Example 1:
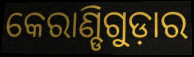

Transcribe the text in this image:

କେରାଣ୍ଡିଗୁଡ଼ାର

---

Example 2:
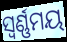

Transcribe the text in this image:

ସ୍ଵର୍ଣ୍ଣମୟ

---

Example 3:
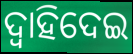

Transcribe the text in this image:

ଦ୍ୱାହିଦେଇ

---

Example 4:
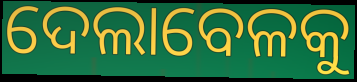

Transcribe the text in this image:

ଦେଲାବେଳକୁ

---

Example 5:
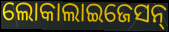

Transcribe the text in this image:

ଲୋକାଲାଇଜେସନ୍